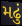
મઢું